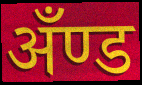
अँण्ड